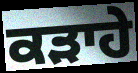
ਕੜਾਹੇ